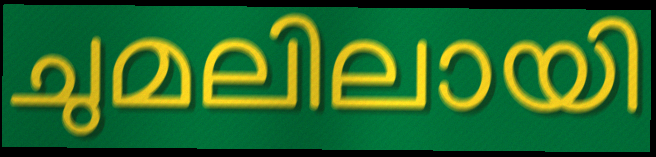
ചുമലിലായി